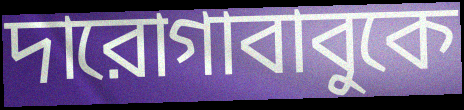
দারোগাবাবুকে